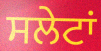
ਸਲੇਟਾਂ